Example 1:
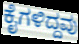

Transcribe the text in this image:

ಕೈಗಳಿದ್ದವು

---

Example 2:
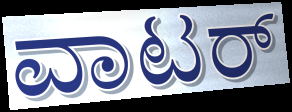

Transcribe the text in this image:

ವಾಟರ್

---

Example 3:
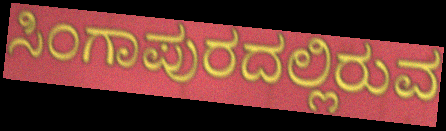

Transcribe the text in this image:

ಸಿಂಗಾಪುರದಲ್ಲಿರುವ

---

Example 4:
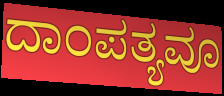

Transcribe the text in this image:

ದಾಂಪತ್ಯವೂ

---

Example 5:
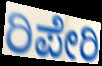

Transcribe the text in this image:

ರಿಪೇರಿ